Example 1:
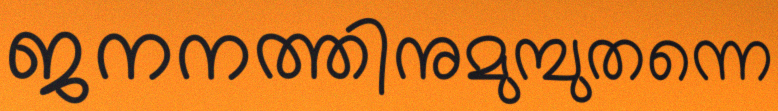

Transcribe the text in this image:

ജനനത്തിനുമുമ്പുതന്നെ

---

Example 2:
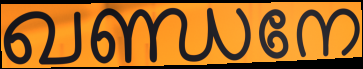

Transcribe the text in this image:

ഖണ്ഡനേ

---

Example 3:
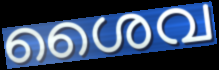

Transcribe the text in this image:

ശൈവ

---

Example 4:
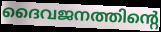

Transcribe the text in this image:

ദൈവജനത്തിന്റെ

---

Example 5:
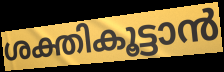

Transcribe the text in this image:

ശക്തികൂട്ടാൻ